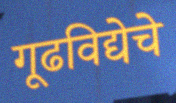
गूढविद्येचे